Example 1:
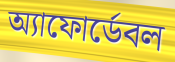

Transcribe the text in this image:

অ্যাফোর্ডেবল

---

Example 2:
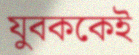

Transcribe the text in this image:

যুবককেই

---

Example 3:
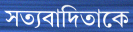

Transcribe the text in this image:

সত্যবাদিতাকে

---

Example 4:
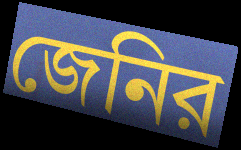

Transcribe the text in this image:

জেনির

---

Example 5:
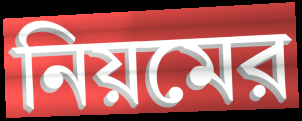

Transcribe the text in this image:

নিয়মের